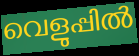
വെളുപ്പിൽ